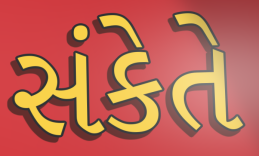
સંકેતે